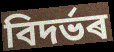
বিদৰ্ভৰ